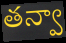
తన్వా